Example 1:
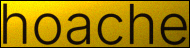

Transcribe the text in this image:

hoache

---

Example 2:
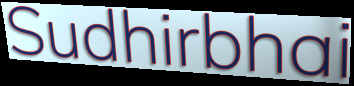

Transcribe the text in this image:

Sudhirbhai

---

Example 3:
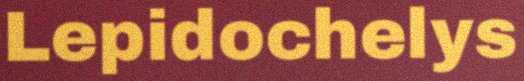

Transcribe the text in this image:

Lepidochelys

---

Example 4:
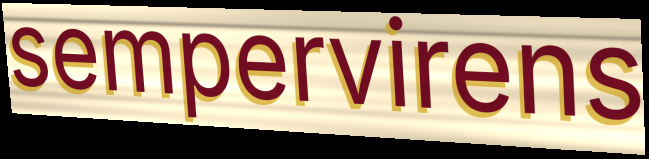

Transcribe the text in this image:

sempervirens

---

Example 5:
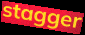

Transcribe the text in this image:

stagger